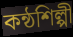
কন্ঠশিল্পী